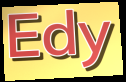
Edy